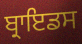
ਬ੍ਰਾਇਡਸ